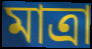
মাত্রা